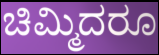
ಚಿಮ್ಮಿದರೂ